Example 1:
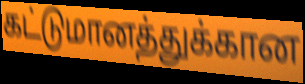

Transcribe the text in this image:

கட்டுமானத்துக்கான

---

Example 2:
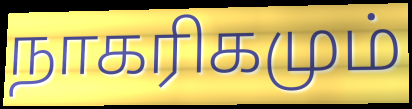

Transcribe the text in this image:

நாகரிகமும்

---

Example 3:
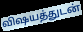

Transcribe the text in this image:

விஷயத்துடன்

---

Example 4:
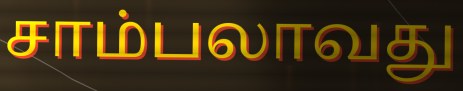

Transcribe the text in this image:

சாம்பலாவது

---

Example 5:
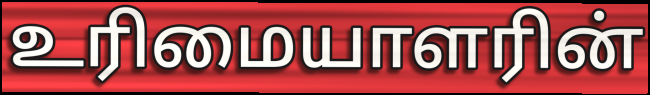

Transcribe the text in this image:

உரிமையாளரின்